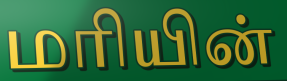
மரியின்